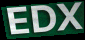
EDX